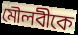
মৌলবীকে